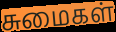
சுமைகள்